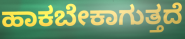
ಹಾಕಬೇಕಾಗುತ್ತದೆ